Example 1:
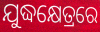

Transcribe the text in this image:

ଯୁଦ୍ଧକ୍ଷେତ୍ରରେ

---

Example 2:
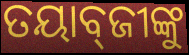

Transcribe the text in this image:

ତୟାବ୍‌ଜୀଙ୍କୁ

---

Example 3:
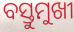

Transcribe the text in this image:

ବସ୍ତୁମୁଖୀ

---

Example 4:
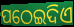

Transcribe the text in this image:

ପଠେଇଦିଏ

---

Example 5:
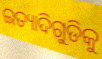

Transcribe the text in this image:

ଇତ୍ୟାଦିଗୁଡିକୁ